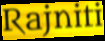
Rajniti